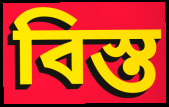
বিস্ত